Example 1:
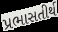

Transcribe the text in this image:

પ્રભાસતીર્થ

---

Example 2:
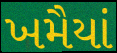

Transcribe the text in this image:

ખમૈયાં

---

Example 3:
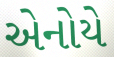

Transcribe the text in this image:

એનોયે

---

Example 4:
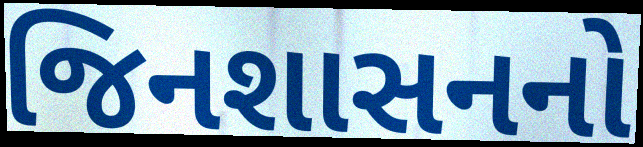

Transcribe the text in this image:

જિનશાસનનો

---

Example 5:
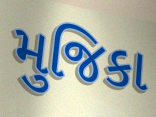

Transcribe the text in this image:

મુજિકા